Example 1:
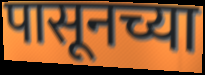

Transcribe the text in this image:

पासूनच्या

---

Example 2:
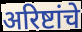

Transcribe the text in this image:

अरिष्टांचे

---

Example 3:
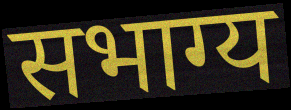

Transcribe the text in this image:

सभाग्य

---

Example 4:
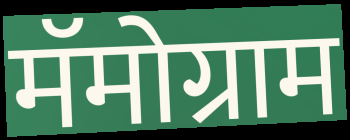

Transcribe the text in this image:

मॅमोग्राम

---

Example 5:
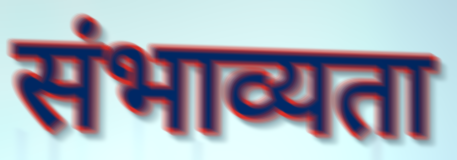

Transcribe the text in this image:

संभाव्यता